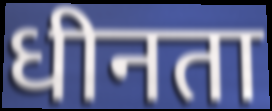
धीनता